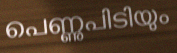
പെണ്ണുപിടിയും